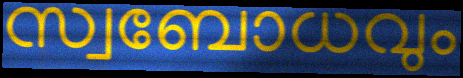
സ്വബോധവും